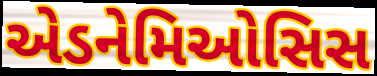
એડનેમિઓસિસ